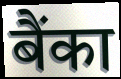
बैंका